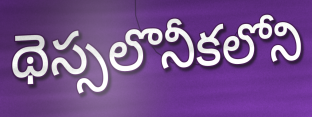
థెస్సలొనీకలోని